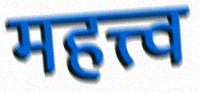
महत्त्व